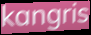
kangris